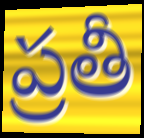
ప్రతీ